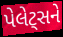
પેલેટ્સને